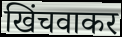
खिंचवाकर